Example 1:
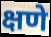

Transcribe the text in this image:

क्षणे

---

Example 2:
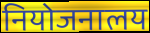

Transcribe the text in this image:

नियोजनालय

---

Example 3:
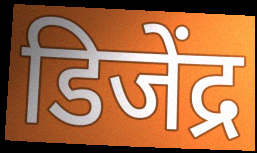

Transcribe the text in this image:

डिजेंद्र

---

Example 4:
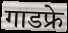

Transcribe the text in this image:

गाडफ्रे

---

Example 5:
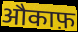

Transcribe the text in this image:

औकाफ़